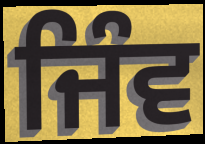
ਜਿੰਵ